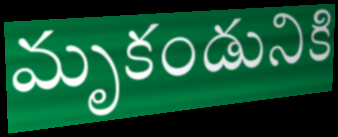
మృకండునికి